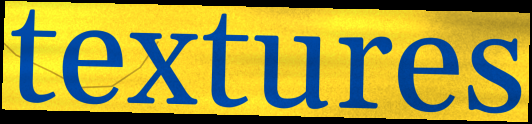
textures